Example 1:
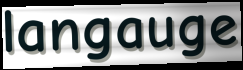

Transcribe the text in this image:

langauge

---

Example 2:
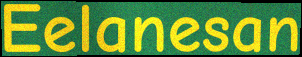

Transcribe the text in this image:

Eelanesan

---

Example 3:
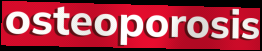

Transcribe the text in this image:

osteoporosis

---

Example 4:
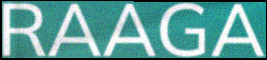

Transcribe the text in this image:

RAAGA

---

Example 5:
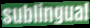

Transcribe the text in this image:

sublingual